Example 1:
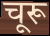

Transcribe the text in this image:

चूरू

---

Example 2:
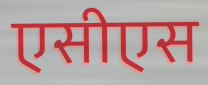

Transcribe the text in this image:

एसीएस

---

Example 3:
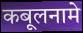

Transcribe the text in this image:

कबूलनामे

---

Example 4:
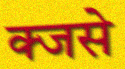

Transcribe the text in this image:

क्जसे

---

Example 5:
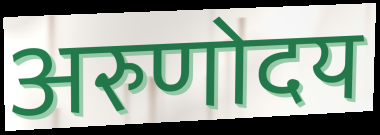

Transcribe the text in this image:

अरुणोदय